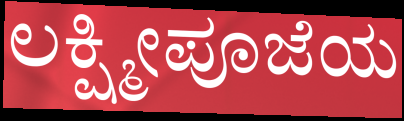
ಲಕ್ಷ್ಮೀಪೂಜೆಯ